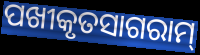
ପଖୀକୃତସାଗରାମ୍